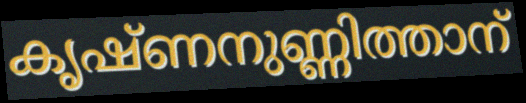
കൃഷ്ണനുണ്ണിത്താന്